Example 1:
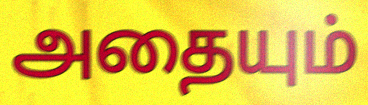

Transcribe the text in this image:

அதையும்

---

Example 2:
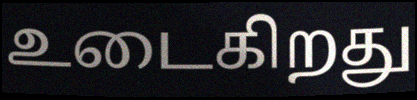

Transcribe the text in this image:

உடைகிறது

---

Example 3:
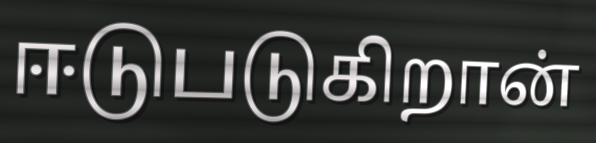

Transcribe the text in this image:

ஈடுபடுகிறான்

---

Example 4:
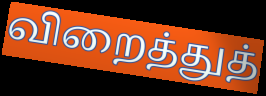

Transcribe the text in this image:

விறைத்துத்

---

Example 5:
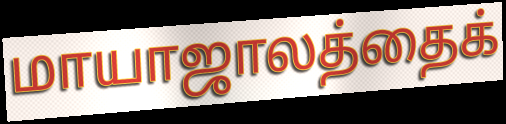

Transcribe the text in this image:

மாயாஜாலத்தைக்